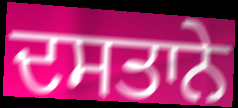
ਦਸਤਾਨੇ